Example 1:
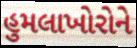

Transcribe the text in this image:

હુમલાખોરોને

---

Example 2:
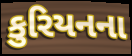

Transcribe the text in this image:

કુરિયનના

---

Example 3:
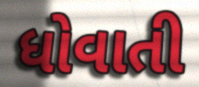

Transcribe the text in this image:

ધોવાતી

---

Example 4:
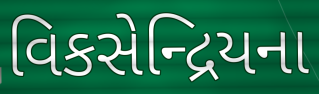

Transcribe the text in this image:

વિકસેન્દ્રિયના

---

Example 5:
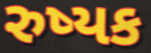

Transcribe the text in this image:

રુષ્યક